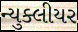
ન્યુક્લીયર